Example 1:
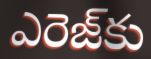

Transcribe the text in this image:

ఎరెజ్‌కు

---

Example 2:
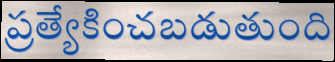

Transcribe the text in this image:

ప్రత్యేకించబడుతుంది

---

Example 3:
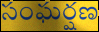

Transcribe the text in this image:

సంఘర్షణ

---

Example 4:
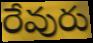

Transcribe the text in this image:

రేవురు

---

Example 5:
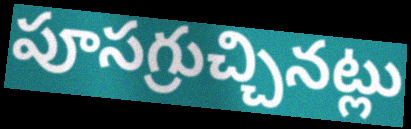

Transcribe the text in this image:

పూసగ్రుచ్చినట్లు